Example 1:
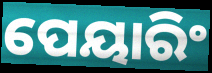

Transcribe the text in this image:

ପେୟାରିଂ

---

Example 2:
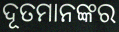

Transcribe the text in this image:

ଦୂତମାନଙ୍କର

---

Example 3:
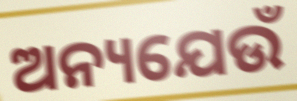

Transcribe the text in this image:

ଅନ୍ୟଯେଉଁ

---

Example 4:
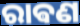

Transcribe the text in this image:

ରାଵଣ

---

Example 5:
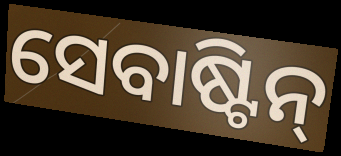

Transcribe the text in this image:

ସେବାଷ୍ଟିନ୍